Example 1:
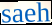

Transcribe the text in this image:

saeh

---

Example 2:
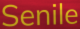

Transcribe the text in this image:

Senile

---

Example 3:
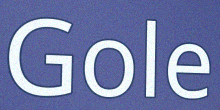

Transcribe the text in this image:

Gole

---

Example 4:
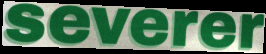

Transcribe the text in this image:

severer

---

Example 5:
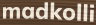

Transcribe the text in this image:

madkolli